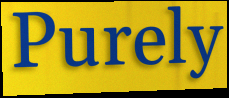
Purely